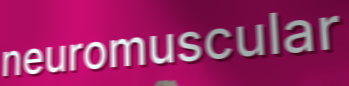
neuromuscular